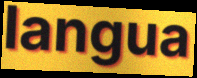
langua